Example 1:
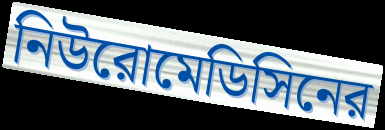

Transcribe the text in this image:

নিউরোমেডিসিনের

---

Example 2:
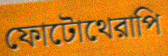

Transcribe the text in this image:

ফোটোথেরাপি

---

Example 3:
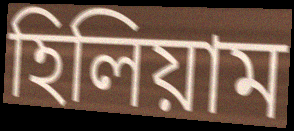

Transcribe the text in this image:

হিলিয়াম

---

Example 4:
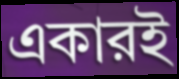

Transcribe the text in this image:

একারই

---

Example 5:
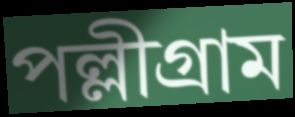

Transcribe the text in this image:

পল্লীগ্রাম